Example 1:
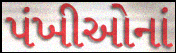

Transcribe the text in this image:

પંખીઓનાં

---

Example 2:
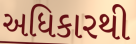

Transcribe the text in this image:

અધિકારથી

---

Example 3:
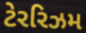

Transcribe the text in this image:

ટેરરિઝમ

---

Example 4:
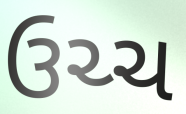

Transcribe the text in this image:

ઉચ્ચ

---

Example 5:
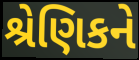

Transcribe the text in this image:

શ્રેણિકને